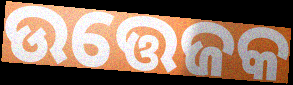
ଉତ୍ତେଜକ